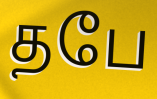
தபே